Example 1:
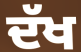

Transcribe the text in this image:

ਦੱਖ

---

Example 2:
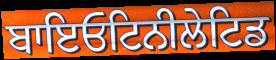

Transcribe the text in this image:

ਬਾਇਓਟਿਨੀਲੇਟਿਡ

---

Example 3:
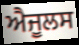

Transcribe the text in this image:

ਐਜੂਲਸ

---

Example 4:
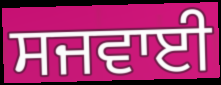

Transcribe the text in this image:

ਸਜਵਾਈ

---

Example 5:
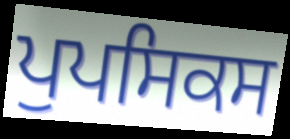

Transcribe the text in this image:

ਪੁਪਸਿਕਸ